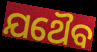
ଯଥୈବ